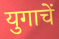
युगाचें